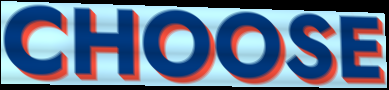
CHOOSE